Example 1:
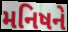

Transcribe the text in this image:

મનિષને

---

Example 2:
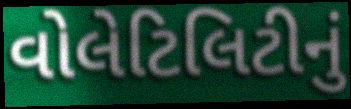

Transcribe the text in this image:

વોલેટિલિટીનું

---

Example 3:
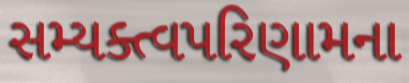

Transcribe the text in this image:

સમ્યક્ત્વપરિણામના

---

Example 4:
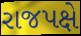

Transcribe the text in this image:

રાજપક્ષે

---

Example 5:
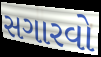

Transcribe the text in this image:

સગારવો